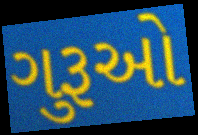
ગુરૂઓ